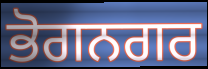
ਭੋਗਨਗਰ